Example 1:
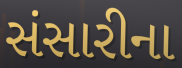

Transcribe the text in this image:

સંસારીના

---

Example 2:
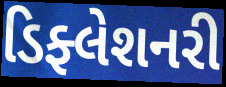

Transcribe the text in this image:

ડિફ્લેશનરી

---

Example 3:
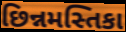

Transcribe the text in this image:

છિન્નમસ્તિકા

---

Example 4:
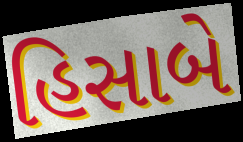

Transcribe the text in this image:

હિસાબે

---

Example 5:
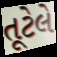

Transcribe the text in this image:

તૂટેલે